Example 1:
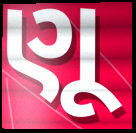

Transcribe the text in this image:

ણૂ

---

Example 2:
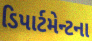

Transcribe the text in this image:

ડિપાર્ટમેન્ટના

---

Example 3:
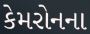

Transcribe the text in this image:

કેમરોનના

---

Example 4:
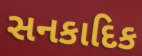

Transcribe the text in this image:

સનકાદિક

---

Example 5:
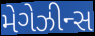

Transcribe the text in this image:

મેગેઝીન્સ